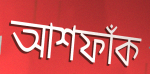
আশফাঁক